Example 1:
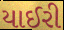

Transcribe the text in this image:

યાઈરી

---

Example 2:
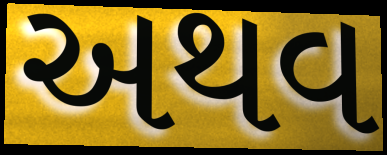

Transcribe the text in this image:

અથવ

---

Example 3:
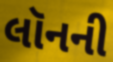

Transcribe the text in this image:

લૉનની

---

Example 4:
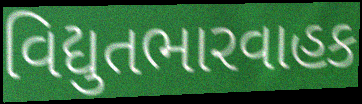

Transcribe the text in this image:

વિદ્યુતભારવાહક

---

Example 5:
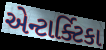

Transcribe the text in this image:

એન્ટાર્ક્ટિકા